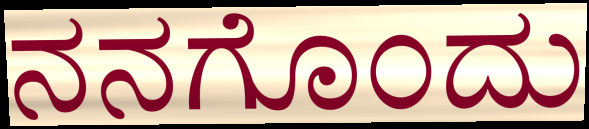
ನನಗೊಂದು